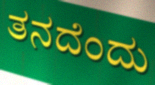
ತನದೆಂದು